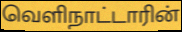
வெளிநாட்டாரின்